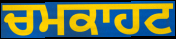
ਚਮਕਾਹਟ